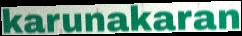
karunakaran